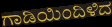
ಗಾಡಿಯಿಂದಿಳಿದ